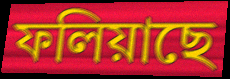
ফলিয়াছে